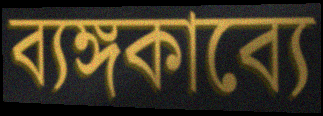
ব্যঙ্গকাব্যে